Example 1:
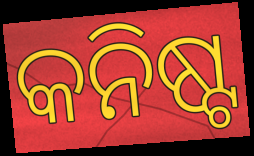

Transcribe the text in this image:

କନିଷ୍ଟ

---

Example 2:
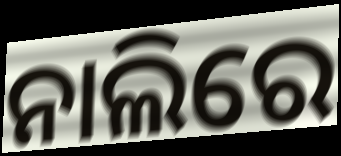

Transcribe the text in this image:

ନାଲିରେ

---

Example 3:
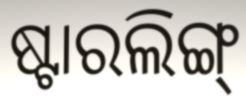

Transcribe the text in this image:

ଷ୍ଟାରଲିଙ୍ଗ୍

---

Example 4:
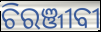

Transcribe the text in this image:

ଚିରଞ୍ଜୀବୀ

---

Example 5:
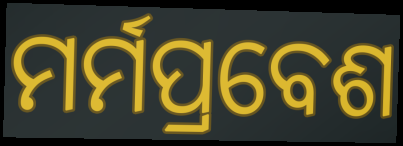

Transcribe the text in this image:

ମର୍ମପ୍ରବେଶ